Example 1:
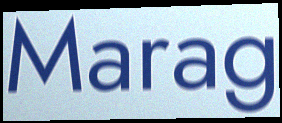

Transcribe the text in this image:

Marag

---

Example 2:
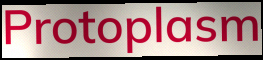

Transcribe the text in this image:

Protoplasm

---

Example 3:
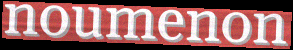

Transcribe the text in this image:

noumenon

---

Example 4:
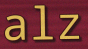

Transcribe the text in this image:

alz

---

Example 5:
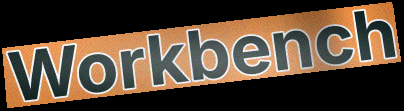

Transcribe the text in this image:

Workbench